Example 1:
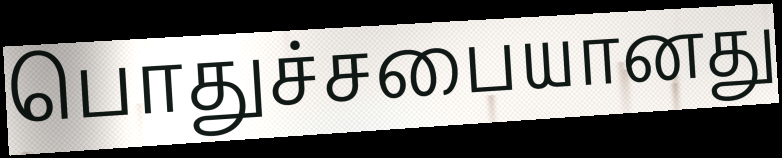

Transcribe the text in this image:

பொதுச்சபையானது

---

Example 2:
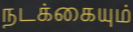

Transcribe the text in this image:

நடக்கையும்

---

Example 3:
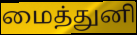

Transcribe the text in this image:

மைத்துனி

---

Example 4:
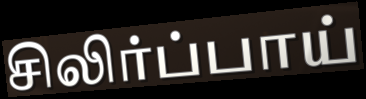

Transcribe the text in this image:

சிலிர்ப்பாய்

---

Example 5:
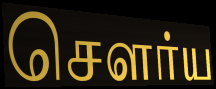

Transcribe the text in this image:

சௌர்ய